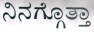
ನಿನಗ್ಗೊತ್ತಾ